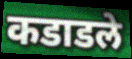
कडाडले